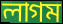
লাগম